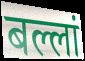
बल्लां